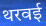
थरवई